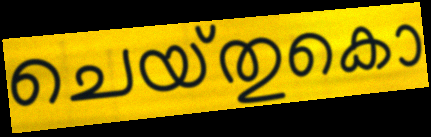
ചെയ്‌തുകൊ